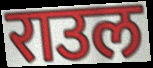
राउल